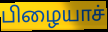
பிழையாச்